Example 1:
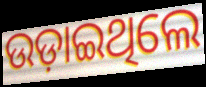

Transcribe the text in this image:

ଉଡ଼ାଇଥିଲେ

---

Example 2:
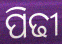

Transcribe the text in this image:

ପିଢୀ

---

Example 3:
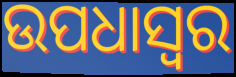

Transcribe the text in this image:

ଉପଧାସ୍ୱର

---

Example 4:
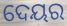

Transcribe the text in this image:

ଦେୟର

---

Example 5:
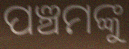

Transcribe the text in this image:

ପଞ୍ଚମଙ୍କୁ